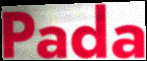
Pada